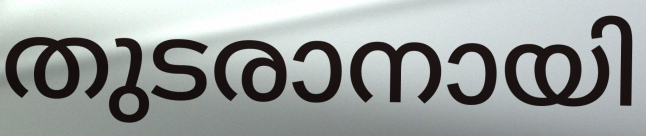
തുടരാനായി